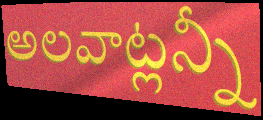
అలవాట్లన్నీ